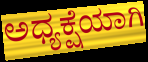
ಅಧ್ಯಕ್ಷೆಯಾಗಿ